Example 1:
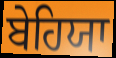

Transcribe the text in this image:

ਬੇਹਿਯਾ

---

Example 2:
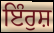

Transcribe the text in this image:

ਇੰਰੁਸ਼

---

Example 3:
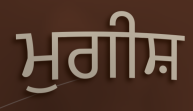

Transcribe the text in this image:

ਮੁਗੀਸ਼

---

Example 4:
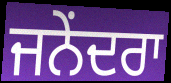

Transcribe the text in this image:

ਜਨੇਂਦਰਾ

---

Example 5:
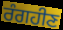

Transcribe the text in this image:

ਰੰਗਹੀਣ